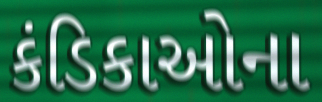
કંડિકાઓના